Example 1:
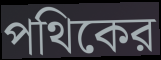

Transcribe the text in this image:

পথিকের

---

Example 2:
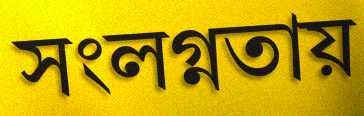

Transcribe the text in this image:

সংলগ্নতায়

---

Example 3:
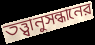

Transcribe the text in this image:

তত্ত্বানুসন্ধানের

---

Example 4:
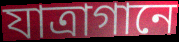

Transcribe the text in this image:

যাত্রাগানে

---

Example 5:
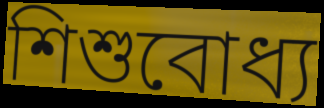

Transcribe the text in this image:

শিশুবোধ্য